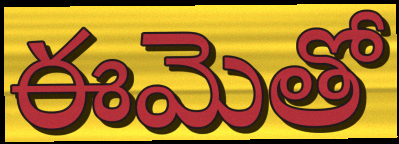
ఈమెతో